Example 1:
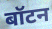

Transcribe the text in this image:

बॉटन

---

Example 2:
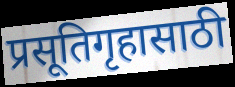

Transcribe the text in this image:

प्रसूतिगृहासाठी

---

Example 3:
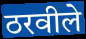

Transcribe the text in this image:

ठरवीले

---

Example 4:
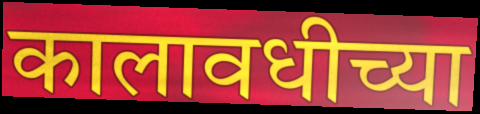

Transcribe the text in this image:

कालावधीच्या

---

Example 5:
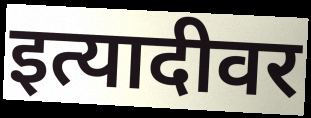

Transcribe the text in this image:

इत्यादीवर